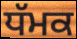
ਧੱਮਕ